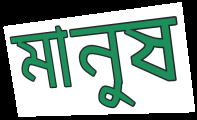
মানুষ